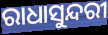
ରାଧାସୁନ୍ଦରୀ